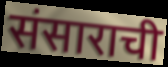
संसाराची